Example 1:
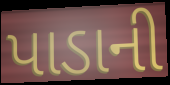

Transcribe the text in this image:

પાડાની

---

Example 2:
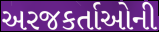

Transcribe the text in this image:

અરજકર્તાઓની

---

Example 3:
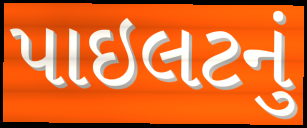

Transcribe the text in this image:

પાઇલટનું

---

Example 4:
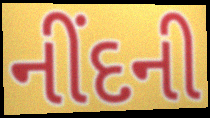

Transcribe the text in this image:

નીંદની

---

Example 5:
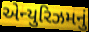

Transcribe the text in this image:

એન્યુરિઝમનું